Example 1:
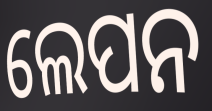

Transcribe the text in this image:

ଲେପନ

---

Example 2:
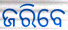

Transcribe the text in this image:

ଜରିବେ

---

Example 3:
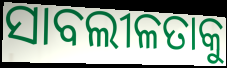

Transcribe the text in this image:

ସାବଲୀଳତାକୁ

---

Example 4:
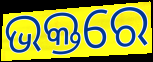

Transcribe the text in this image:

ଭକ୍ତରେ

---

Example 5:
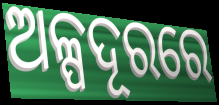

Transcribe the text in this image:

ଅଳ୍ପଦୂରରେ